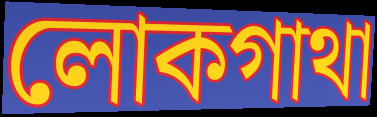
লোকগাথা